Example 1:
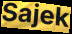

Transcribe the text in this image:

Sajek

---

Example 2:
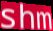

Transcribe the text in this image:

shm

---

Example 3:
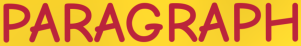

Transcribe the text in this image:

PARAGRAPH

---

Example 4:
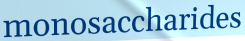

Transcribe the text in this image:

monosaccharides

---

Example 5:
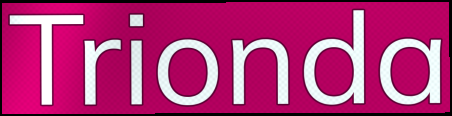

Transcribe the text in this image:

Trionda